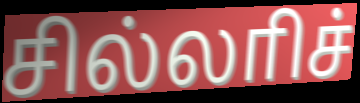
சில்லரிச்